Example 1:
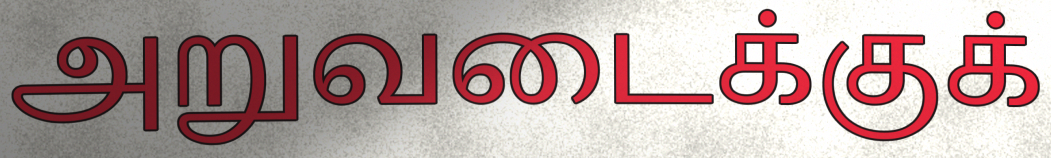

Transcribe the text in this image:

அறுவடைக்குக்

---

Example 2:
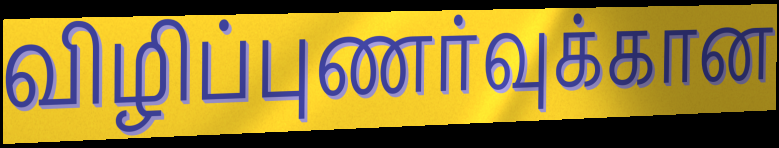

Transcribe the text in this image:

விழிப்புணர்வுக்கான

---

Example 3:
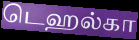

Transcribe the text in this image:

டெஹல்கா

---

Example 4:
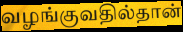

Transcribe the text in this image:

வழங்குவதில்தான்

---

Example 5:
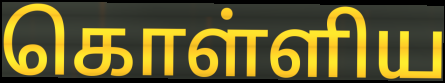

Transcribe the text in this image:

கொள்ளிய